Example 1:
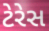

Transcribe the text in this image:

ટેરેસ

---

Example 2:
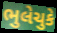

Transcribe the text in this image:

ભુલેચુકે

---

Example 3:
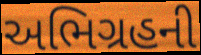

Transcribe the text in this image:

અભિગ્રહની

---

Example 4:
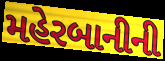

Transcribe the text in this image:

મહેરબાનીની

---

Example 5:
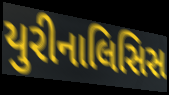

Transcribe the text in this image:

યુરીનાલિસિસ